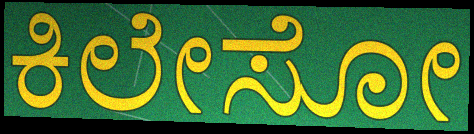
ಕಿಲೇಸೋ